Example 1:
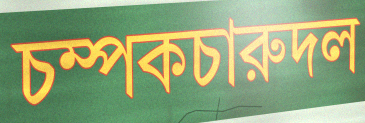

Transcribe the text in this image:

চম্পকচারুদল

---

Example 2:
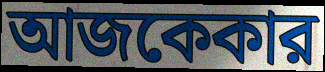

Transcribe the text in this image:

আজকেকার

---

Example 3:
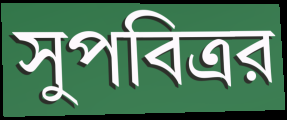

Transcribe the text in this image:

সুপবিত্রর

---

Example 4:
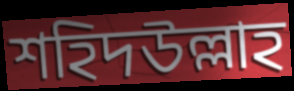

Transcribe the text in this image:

শহিদউল্লাহ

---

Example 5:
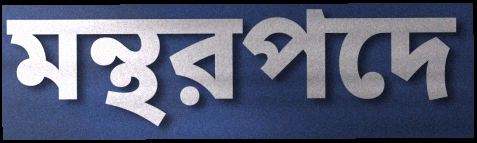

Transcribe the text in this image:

মন্থরপদে